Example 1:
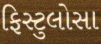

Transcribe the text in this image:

ફિસ્ટુલોસા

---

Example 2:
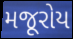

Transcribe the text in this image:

મજૂરોય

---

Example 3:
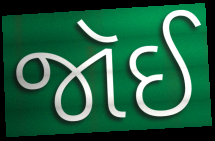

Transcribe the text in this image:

જૉઈ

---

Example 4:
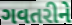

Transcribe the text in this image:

ગવતરીને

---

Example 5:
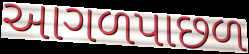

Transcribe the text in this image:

આગળપાછળ